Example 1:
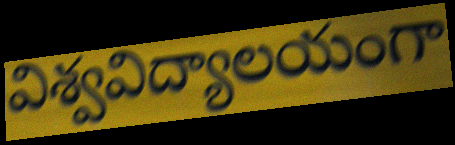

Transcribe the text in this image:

విశ్వవిద్యాలయంగా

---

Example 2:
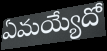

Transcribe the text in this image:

ఏమయ్యేదో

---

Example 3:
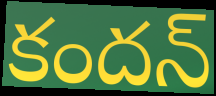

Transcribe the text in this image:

కందన్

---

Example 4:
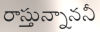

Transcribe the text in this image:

రాస్తున్నాననీ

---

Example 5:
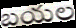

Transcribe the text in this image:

బయల